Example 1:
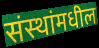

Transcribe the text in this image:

संस्थांमधील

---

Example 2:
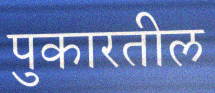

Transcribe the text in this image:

पुकारतील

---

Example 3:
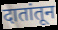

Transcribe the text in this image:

दातांतून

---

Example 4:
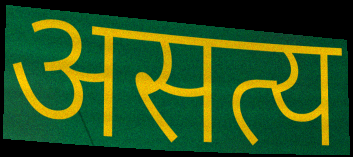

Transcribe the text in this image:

असत्य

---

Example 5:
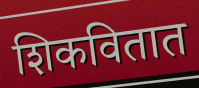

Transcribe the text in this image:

शिकवितात